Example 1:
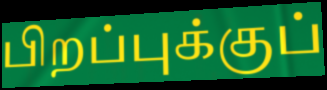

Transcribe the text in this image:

பிறப்புக்குப்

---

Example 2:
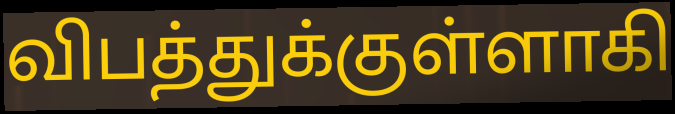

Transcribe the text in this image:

விபத்துக்குள்ளாகி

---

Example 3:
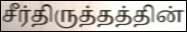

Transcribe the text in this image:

சீர்திருத்தத்தின்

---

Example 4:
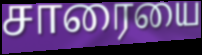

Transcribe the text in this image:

சாரையை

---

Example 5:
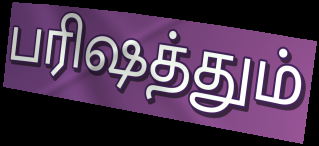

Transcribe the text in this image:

பரிஷத்தும்